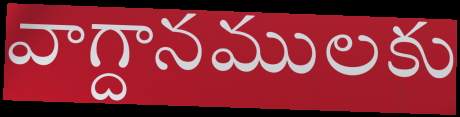
వాగ్దానములకు